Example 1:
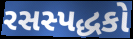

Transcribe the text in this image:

રસસ્પદ્ધકો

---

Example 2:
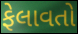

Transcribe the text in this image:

ફેલાવતો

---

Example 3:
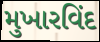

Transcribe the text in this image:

મુખારવિંદ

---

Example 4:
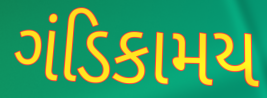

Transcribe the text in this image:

ગંડિકામય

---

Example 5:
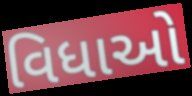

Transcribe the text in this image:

વિધાઓ